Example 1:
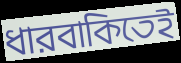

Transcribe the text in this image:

ধারবাকিতেই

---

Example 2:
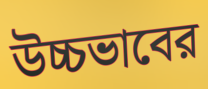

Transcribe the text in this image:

উচ্চভাবের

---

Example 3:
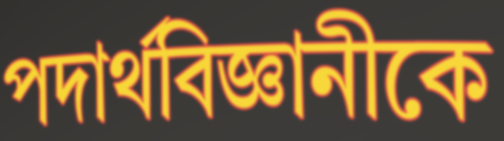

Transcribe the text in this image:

পদার্থবিজ্ঞানীকে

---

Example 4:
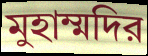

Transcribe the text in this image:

মুহাম্মদির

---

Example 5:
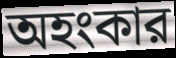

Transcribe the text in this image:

অহংকার